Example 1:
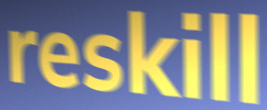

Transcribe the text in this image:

reskill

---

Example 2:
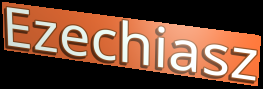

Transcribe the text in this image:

Ezechiasz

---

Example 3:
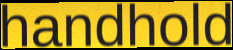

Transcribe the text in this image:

handhold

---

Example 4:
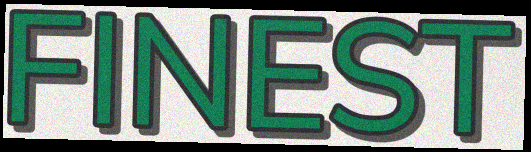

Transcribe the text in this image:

FINEST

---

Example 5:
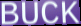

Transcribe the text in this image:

BUCK